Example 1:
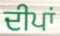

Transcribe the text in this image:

ਦੀਪਾਂ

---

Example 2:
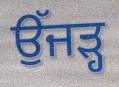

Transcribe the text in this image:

ਉੱਜੜ੍ਹ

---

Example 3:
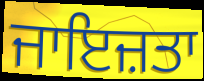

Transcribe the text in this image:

ਜਾਇਜ਼ਤਾ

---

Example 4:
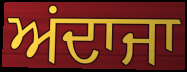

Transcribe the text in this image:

ਅਂਦਾਜਾ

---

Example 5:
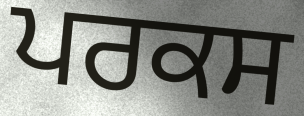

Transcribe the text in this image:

ਪਰਕਸ